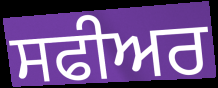
ਸਫੀਅਰ